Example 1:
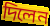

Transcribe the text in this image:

দিলেন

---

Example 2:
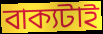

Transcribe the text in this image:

বাক্যটাই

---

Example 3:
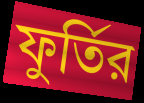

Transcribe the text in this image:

ফুর্তির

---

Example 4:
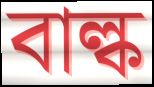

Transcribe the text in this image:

বাল্ক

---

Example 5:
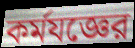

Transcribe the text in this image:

কর্মযজ্ঞের